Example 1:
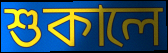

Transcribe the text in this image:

শুকালে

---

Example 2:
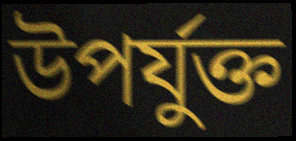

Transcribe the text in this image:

উপৰ্যুক্ত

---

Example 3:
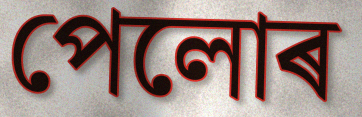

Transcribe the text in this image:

পেলোৰ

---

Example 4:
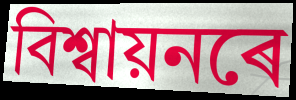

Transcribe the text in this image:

বিশ্বায়নৰে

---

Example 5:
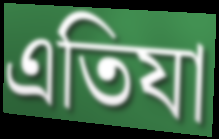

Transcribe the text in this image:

এতিযা